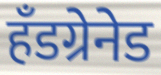
हँडग्रेनेड